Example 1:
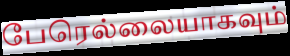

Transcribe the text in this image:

பேரெல்லையாகவும்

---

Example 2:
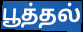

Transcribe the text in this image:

பூத்தல்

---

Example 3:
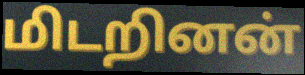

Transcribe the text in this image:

மிடறினன்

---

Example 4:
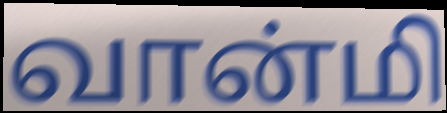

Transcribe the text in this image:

வான்மி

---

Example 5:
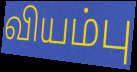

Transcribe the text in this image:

வியம்பு